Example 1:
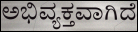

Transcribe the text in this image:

ಅಭಿವ್ಯಕ್ತವಾಗಿದೆ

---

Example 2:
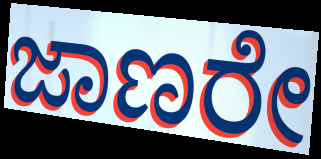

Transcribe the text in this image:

ಜಾಣರೇ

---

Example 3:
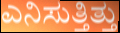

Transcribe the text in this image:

ಎನಿಸುತ್ತಿತ್ತು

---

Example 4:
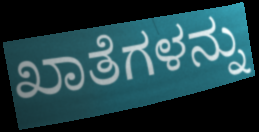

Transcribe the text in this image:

ಖಾತೆಗಳನ್ನು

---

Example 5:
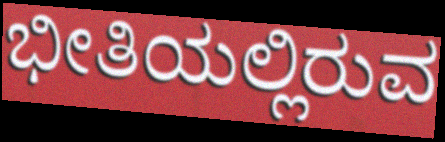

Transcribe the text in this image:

ಭೀತಿಯಲ್ಲಿರುವ